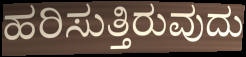
ಹರಿಸುತ್ತಿರುವುದು